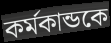
কর্মকান্ডকে